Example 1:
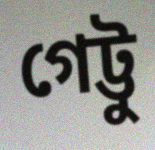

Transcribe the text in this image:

গেট্টু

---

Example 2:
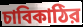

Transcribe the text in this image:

চাবিকাঠির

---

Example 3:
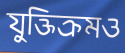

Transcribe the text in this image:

যুক্তিক্রমও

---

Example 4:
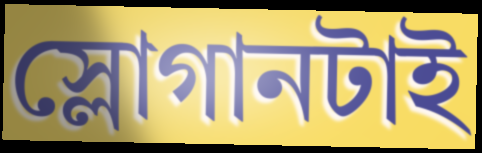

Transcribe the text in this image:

স্লোগানটাই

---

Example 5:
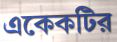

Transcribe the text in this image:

একেকটির